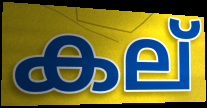
കല്